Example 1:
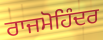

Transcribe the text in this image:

ਰਾਜਮੋਹਿੰਦਰ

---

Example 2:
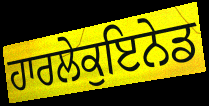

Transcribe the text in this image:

ਹਾਰਲੇਕੁਇਨੇਡ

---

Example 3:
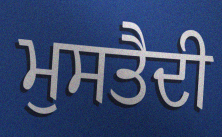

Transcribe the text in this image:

ਮੁਸਤੈਦੀ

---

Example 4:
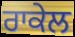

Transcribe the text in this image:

ਰਾਕੇਲ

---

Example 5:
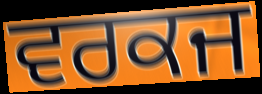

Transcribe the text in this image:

ਵਰਕਜ